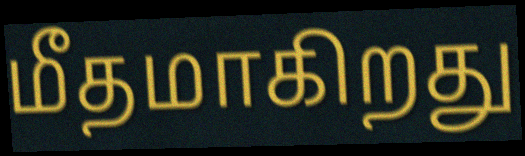
மீதமாகிறது